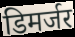
डिमर्जर